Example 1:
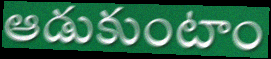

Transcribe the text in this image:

ఆడుకుంటాం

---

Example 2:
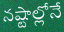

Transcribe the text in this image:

నష్టాల్లోనే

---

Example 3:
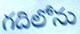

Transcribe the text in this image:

గదిలోను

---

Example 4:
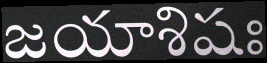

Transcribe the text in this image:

జయాశిషః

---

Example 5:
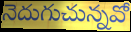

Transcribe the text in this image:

నెదుగుచున్నవో